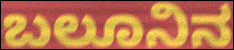
ಬಲೂನಿನ